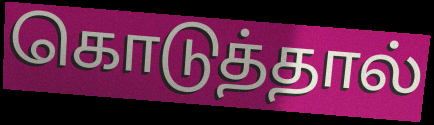
கொடுத்தால்